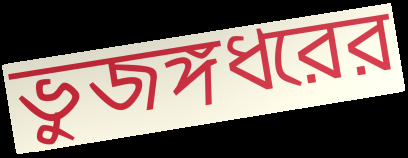
ভুজঙ্গধরের